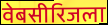
वेबसीरिजला